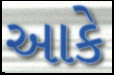
આકે